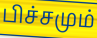
பிச்சமும்